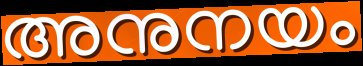
അനുനയം